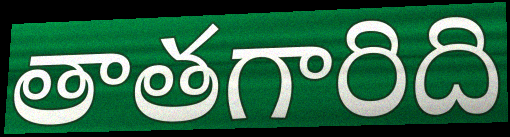
తాతగారిది